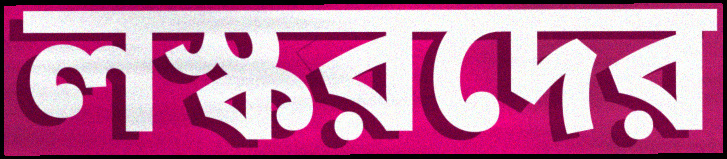
লস্করদের